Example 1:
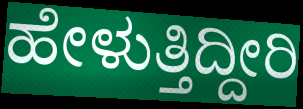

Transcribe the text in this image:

ಹೇಳುತ್ತಿದ್ದೀರಿ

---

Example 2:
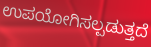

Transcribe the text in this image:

ಉಪಯೋಗಿಸಲ್ಪಡುತ್ತದೆ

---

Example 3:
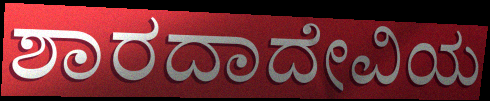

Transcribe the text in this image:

ಶಾರದಾದೇವಿಯ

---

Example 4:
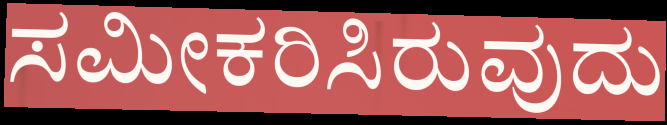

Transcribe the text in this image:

ಸಮೀಕರಿಸಿರುವುದು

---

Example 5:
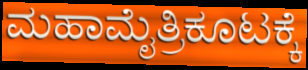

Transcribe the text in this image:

ಮಹಾಮೈತ್ರಿಕೂಟಕ್ಕೆ